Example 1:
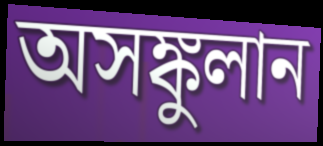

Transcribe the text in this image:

অসঙ্কুলান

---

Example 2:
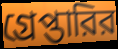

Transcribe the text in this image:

গ্রেপ্তারির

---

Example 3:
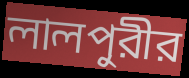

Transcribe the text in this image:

লালপুরীর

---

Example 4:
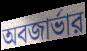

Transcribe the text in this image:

অবজার্ভার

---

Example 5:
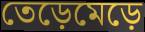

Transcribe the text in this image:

তেড়েমেড়ে